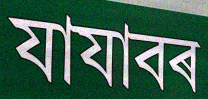
যাযাবৰ